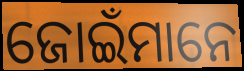
ଜୋଇଁମାନେ